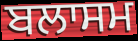
ਬਲਾਸਮ